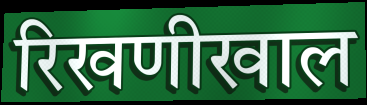
रिखणीखाल